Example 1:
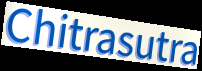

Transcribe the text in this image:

Chitrasutra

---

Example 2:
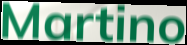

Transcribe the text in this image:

Martino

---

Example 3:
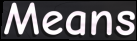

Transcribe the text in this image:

Means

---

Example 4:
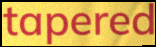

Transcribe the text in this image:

tapered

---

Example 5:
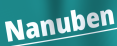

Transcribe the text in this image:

Nanuben